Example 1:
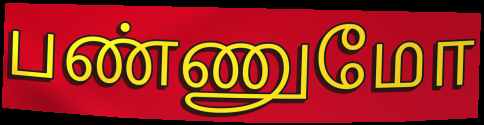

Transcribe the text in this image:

பண்ணுமோ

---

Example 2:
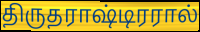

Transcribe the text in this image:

திருதராஷ்டிரரால்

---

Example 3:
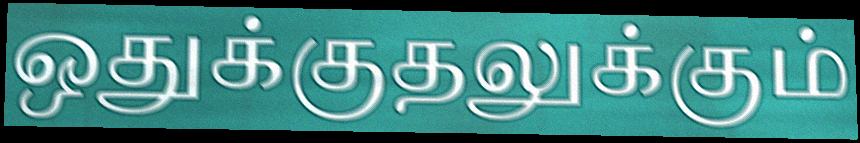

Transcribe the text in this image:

ஒதுக்குதலுக்கும்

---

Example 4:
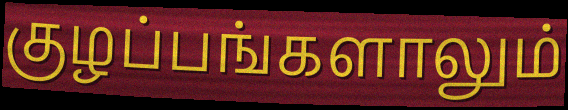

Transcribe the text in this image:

குழப்பங்களாலும்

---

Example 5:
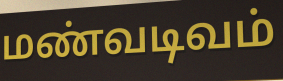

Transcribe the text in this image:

மண்வடிவம்